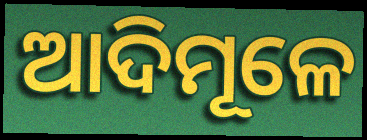
ଆଦିମୂଳେ